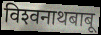
विश्‍वनाथबाबू